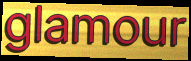
glamour